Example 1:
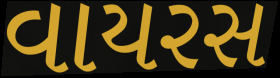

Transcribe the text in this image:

વાયરસ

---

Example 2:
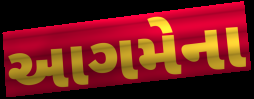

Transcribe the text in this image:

આગમેના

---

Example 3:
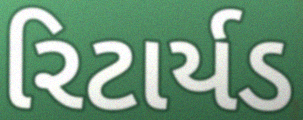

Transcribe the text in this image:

રિટાર્યડ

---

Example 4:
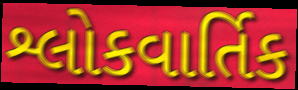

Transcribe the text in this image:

શ્લોકવાર્તિક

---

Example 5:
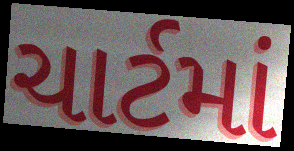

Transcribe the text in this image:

ચાર્ટમાં